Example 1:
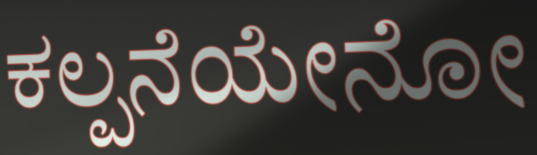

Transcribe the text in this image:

ಕಲ್ಪನೆಯೇನೋ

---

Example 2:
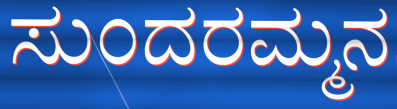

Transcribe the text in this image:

ಸುಂದರಮ್ಮನ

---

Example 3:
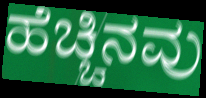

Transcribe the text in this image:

ಹೆಚ್ಚಿನವು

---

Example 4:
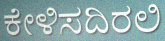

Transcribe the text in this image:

ಕೇಳಿಸದಿರಲಿ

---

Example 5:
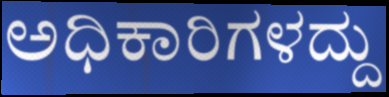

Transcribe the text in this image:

ಅಧಿಕಾರಿಗಳದ್ದು